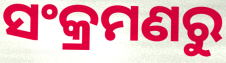
ସଂକ୍ରମଣରୁ